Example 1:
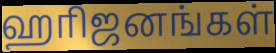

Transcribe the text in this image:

ஹரிஜனங்கள்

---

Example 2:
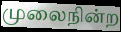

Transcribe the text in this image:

முலைநின்ற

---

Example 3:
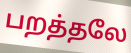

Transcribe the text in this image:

பறத்தலே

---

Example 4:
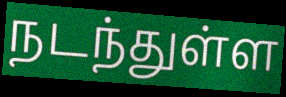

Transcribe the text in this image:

நடந்துள்ள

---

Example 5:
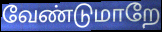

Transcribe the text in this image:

வேண்டுமாறே